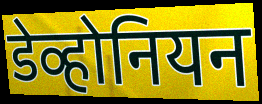
डेव्होनियन